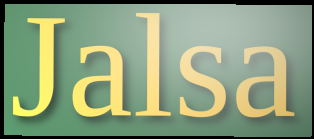
Jalsa